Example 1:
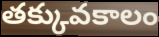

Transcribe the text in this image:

తక్కువకాలం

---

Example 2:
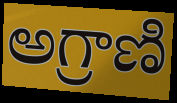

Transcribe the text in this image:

అగ్రాణి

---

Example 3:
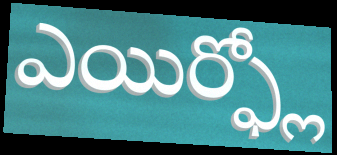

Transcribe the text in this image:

ఎయిర్ఫ్లో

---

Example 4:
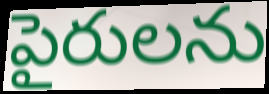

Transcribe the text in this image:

పైరులను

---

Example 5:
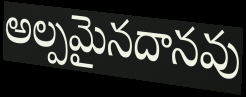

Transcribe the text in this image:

అల్పమైనదానవు